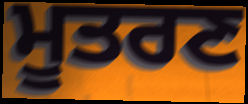
ਮੂਤਰਣ